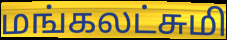
மங்கலட்சுமி